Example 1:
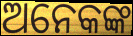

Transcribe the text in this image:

ଅନେକଙ୍କ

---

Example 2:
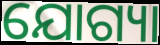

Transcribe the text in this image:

ଯୋଗ୍ୟା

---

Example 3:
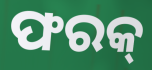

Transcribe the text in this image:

ଫରକ୍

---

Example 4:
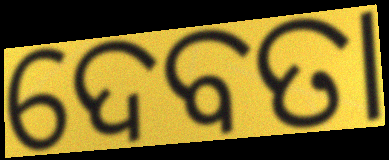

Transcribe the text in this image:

ଦେବତା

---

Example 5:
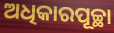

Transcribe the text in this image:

ଅଧିକାରପୂଚ୍ଛା